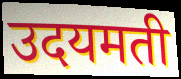
उदयमती